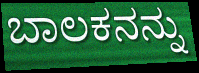
ಬಾಲಕನನ್ನು